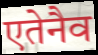
एतेनैव